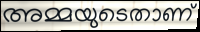
അമ്മയുടെതാണ്